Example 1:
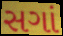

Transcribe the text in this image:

સગાં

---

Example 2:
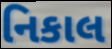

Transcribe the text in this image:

નિકાલ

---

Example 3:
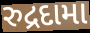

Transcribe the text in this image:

રુદ્રદામા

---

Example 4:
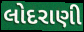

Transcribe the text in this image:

લોદરાણી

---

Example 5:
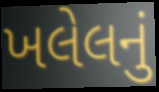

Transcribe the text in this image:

ખલેલનું